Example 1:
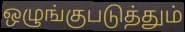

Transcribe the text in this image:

ஒழுங்குபடுத்தும்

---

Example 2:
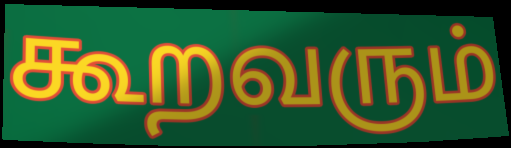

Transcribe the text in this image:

கூறவரும்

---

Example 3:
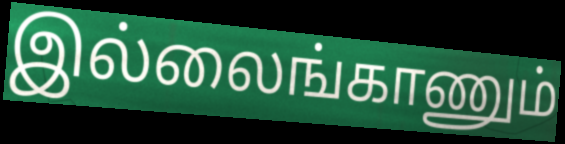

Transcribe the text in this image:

இல்லைங்காணும்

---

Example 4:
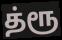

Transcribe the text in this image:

த்ரூ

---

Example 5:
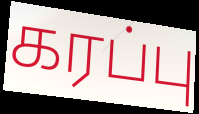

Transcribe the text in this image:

கரப்பு